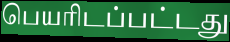
பெயரிடப்பட்டது